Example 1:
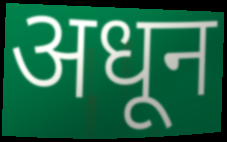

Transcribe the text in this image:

अधून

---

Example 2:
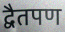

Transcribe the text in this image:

द्वैतपण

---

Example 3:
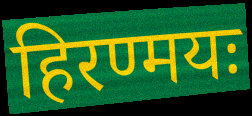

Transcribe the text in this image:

हिरण्मयः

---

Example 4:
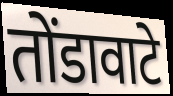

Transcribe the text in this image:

तोंडावाटे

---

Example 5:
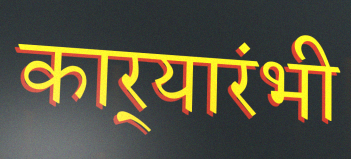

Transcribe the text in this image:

कार्यारंभी